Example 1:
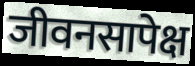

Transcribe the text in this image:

जीवनसापेक्ष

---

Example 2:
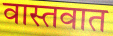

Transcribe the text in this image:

वास्तवात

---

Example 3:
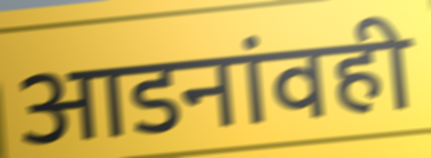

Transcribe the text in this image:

आडनांवही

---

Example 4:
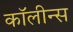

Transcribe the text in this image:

कॉलीन्स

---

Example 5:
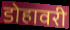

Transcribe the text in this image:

डोहावरी